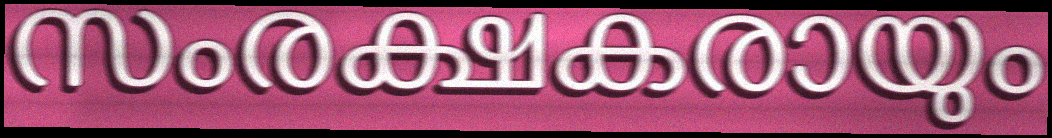
സംരക്ഷകരായും